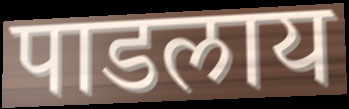
पाडलाय